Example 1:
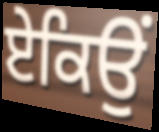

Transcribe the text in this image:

ਏਕਿਉਂ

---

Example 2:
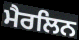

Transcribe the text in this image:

ਮੈਰਲਿਨ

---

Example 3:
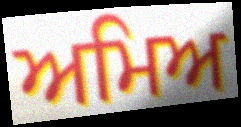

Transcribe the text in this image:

ਅਮਿਅ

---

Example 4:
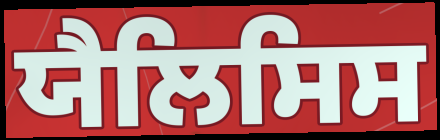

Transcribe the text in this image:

ਯੈਲਿਸਿਸ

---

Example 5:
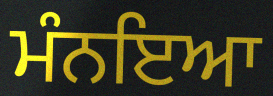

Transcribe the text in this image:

ਮੰਨਇਆ